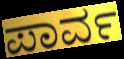
ಪಾರ್ವ